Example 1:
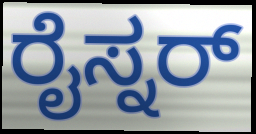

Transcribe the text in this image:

ರೈಸ್ನರ್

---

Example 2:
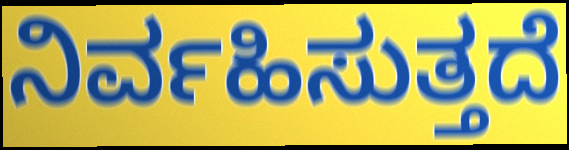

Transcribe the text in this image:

ನಿರ್ವಹಿಸುತ್ತದೆ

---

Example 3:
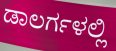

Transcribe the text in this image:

ಡಾಲರ್ಗಳಲ್ಲಿ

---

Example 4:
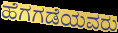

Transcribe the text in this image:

ಹೆಗಗಡೆಯವರು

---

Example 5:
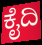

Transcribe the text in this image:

ಕೈದಿ